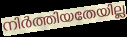
നിർത്തിയതേയില്ല